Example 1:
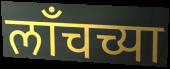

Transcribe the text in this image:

लाँचच्या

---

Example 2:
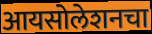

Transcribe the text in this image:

आयसोलेशनचा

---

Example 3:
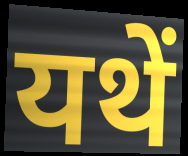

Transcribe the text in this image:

यथें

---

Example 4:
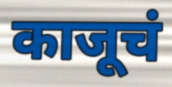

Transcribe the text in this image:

काजूचं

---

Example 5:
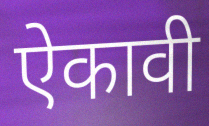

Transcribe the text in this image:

ऐकावी